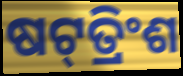
ଷଟ୍‌ତ୍ରିଂଶ